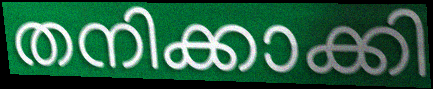
തനിക്കാക്കി